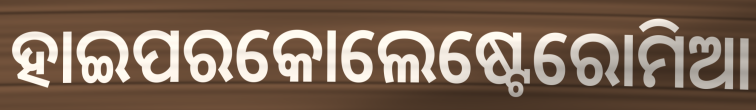
ହାଇପରକୋଲେଷ୍ଟେରୋମିଆ